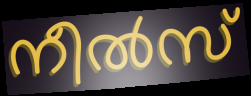
നീൽസ്